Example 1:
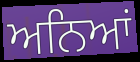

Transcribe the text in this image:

ਅਨਿਆਂ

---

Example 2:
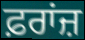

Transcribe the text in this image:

ਫ਼ਰਾਂਜ਼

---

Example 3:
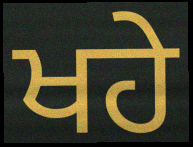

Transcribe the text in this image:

ਖਹੇ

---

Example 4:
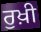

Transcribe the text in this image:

ਰੁਖ਼ੀ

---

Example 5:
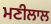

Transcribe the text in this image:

ਮਣੀਲਾਲ